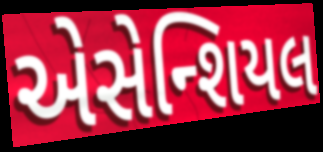
એસેન્શિયલ